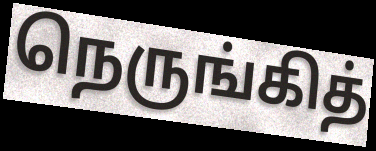
நெருங்கித்